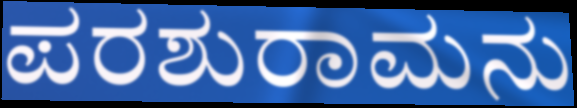
ಪರಶುರಾಮನು